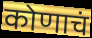
कोणाचं